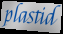
plastid